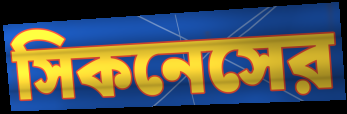
সিকনেসের